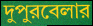
দুপুরবেলার